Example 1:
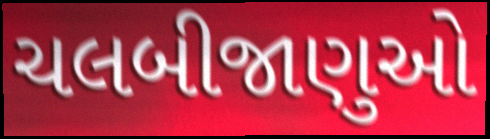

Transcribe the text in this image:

ચલબીજાણુઓ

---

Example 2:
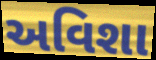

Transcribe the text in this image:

અવિશા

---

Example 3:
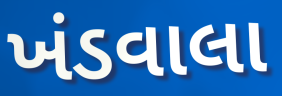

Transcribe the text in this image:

ખંડવાલા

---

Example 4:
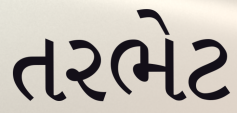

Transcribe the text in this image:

તરભેટ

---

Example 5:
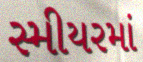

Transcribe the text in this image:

સ્મીયરમાં